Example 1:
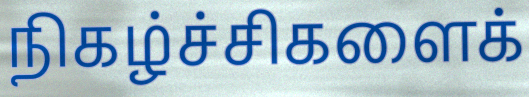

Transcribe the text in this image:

நிகழ்ச்சிகளைக்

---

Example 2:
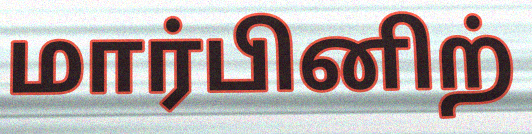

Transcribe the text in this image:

மார்பினிற்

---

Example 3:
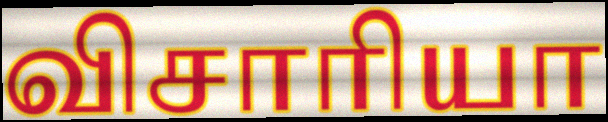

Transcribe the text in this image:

விசாரியா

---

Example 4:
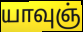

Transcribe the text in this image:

யாவுஞ்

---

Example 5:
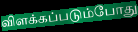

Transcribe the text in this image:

விளக்கப்படும்போது